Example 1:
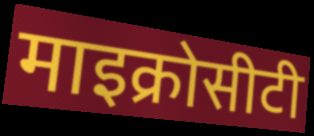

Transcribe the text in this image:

माइक्रोसीटी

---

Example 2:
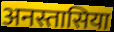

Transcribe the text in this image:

अनस्तासिया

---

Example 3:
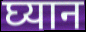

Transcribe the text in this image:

घ्यान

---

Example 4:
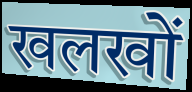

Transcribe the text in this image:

खलखों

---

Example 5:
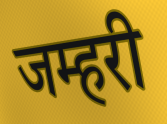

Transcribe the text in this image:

जम्हरी